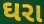
ઘરા